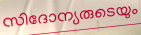
സിദോന്യരുടെയും